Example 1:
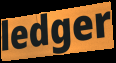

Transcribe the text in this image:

ledger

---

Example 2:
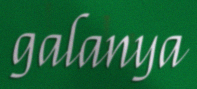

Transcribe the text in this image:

galanya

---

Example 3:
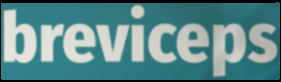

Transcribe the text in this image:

breviceps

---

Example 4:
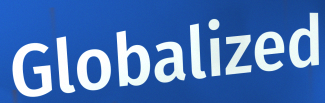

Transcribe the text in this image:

Globalized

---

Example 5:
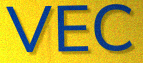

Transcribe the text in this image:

VEC